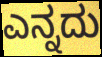
ಎನ್ನದು